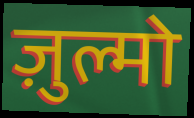
ज़ुल्मो